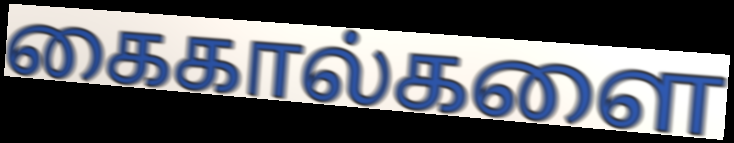
கைகால்களை